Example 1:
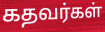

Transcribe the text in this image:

கதவர்கள்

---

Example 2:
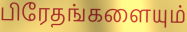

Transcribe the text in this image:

பிரேதங்களையும்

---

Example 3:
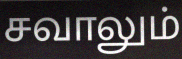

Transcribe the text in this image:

சவாலும்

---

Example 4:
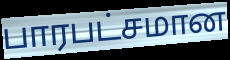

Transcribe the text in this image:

பாரபட்சமான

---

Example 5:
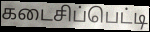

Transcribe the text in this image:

கடைசிப்பெட்டி